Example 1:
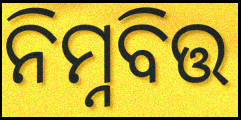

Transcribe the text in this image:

ନିମ୍ନବିତ୍ତ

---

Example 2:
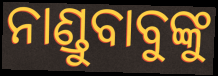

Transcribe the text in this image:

ନାଣ୍ଡୁବାବୁଙ୍କୁ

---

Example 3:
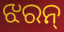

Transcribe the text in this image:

ଝରନ୍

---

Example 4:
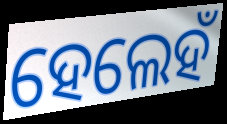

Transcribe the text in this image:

ହେଲେହଁ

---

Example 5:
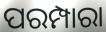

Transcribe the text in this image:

ପରମ୍ପାରା